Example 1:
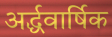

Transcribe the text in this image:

अर्द्धवार्षिक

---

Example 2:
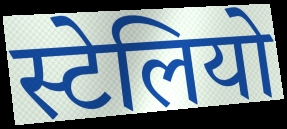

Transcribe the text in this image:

स्टेलियो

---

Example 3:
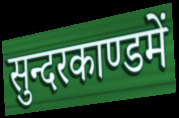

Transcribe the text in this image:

सुन्दरकाण्डमें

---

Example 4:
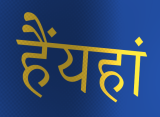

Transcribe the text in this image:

हैंयहां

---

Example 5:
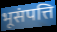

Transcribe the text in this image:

भूसंपत्ति